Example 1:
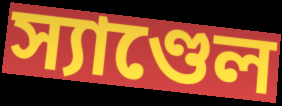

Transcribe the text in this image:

স্যাণ্ডেল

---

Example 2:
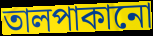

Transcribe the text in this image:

তালপাকানো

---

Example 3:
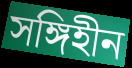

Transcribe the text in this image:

সঙ্গিহীন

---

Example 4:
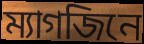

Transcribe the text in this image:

ম্যাগজিনে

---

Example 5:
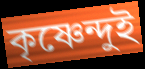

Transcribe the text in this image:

কৃষ্ণেন্দুই